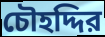
চৌহদ্দির